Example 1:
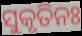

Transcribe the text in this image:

ସୁକୃତିନଃ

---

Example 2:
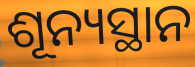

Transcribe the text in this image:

ଶୂନ୍ୟସ୍ଥାନ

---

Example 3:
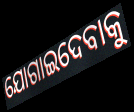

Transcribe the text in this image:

ଯୋଗାଇଦେବାକୁ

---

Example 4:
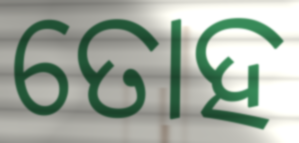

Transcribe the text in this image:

ତୋହ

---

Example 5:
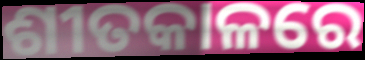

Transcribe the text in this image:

ଶୀତକାଳରେ